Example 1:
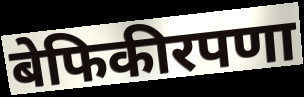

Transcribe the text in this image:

बेफिकीरपणा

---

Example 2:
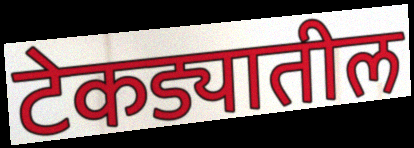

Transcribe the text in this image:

टेकड्यातील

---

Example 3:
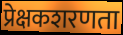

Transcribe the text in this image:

प्रेक्षकशरणता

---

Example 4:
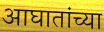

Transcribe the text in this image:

आघातांच्या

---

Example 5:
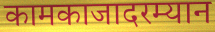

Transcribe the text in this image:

कामकाजादरम्यान